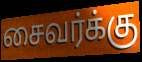
சைவர்க்கு